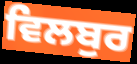
ਵਿਲਬੁਰ